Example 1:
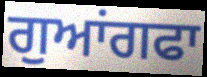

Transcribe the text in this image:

ਗੁਆਂਗਫਾ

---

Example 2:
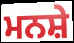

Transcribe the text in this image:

ਮਨਸ਼ੇ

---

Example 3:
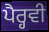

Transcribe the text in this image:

ਪੈਰ੍ਹਵੀ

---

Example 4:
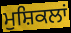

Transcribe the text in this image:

ਮੁਸ਼ਿਕਲਾਂ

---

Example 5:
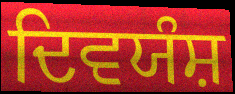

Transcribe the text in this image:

ਦਿਵਯੰਸ਼